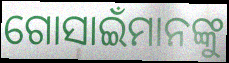
ଗୋସାଇଁମାନଙ୍କୁ